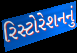
રિસ્ટોરેશનનું